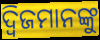
ଦ୍ୱିଜମାନଙ୍କୁ